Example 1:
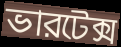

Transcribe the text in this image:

ভারটেক্স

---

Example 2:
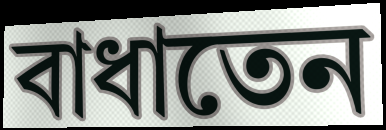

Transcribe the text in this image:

বাধাতেন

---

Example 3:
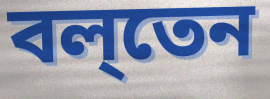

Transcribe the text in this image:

বল্‌তেন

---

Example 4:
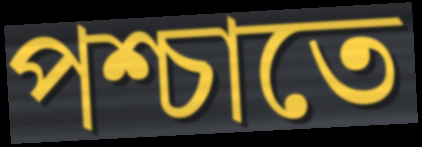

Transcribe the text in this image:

পশ্চাতে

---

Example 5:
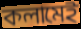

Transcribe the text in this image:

কলামেই